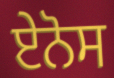
ਏਨੋਸ